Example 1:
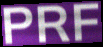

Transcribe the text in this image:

PRF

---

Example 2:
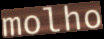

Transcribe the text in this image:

molho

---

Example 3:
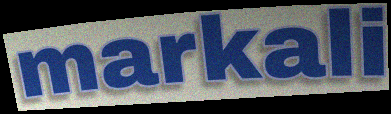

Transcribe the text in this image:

markali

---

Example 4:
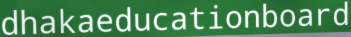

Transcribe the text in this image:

dhakaeducationboard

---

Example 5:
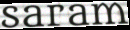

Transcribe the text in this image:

saram